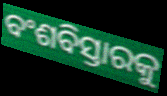
ବଂଶବିସ୍ତାରକୁ